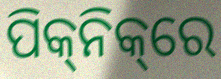
ପିକ୍‌ନିକ୍‌ରେ